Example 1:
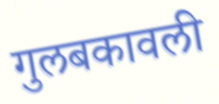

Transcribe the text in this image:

गुलबकावली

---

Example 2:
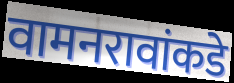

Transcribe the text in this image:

वामनरावांकडे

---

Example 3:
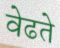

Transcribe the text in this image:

वेढते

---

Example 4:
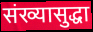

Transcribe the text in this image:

संख्यासुद्धा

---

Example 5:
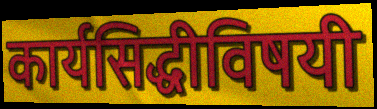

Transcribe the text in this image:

कार्यसिद्धीविषयी